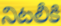
నిటలీకి